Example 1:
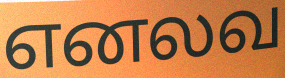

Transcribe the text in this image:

எனலவ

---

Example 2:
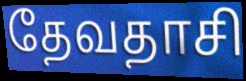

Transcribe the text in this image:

தேவதாசி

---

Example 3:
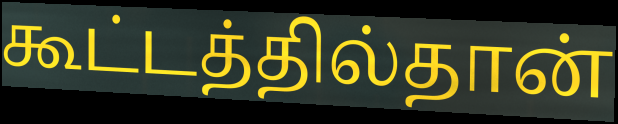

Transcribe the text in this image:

கூட்டத்தில்தான்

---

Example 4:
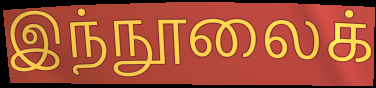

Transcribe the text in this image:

இந்நூலைக்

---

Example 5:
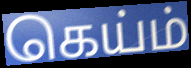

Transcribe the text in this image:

கெய்ம்